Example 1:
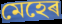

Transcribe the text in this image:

মেহেৰ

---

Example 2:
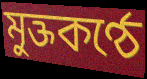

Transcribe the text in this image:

মুক্তকণ্ঠে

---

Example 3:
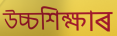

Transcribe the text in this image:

উচ্চশিক্ষাৰ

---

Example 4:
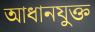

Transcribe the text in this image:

আধানযুক্ত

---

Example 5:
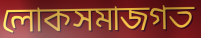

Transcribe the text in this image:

লোকসমাজগত